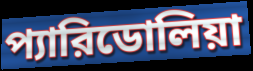
প্যারিডোলিয়া